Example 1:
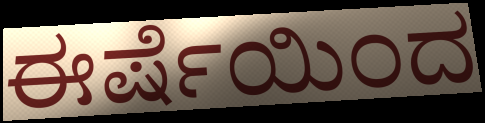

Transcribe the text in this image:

ಈರ್ಷೆಯಿಂದ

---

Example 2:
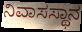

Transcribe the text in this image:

ನಿವಾಸಸ್ಥಾನ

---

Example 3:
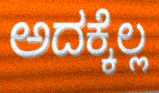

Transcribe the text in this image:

ಅದಕ್ಕೆಲ್ಲ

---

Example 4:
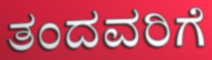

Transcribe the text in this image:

ತಂದವರಿಗೆ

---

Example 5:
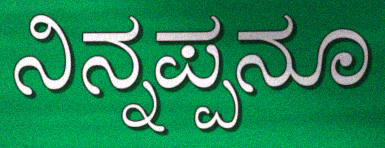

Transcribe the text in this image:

ನಿನ್ನಪ್ಪನೂ